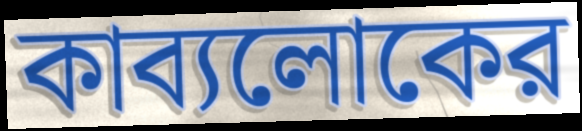
কাব্যলোকের